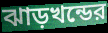
ঝাড়খন্ডের